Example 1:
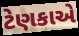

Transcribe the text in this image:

ટેણકાએ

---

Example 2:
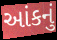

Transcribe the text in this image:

આંકનું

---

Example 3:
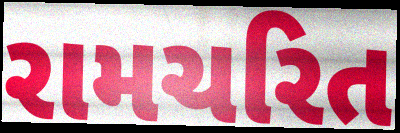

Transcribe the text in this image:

રામચરિત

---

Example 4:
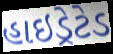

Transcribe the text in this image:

હાઇડ્રેટેડ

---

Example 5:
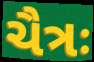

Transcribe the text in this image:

ચૈત્રઃ